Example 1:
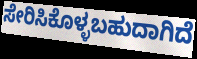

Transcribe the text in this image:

ಸೇರಿಸಿಕೊಳ್ಳಬಹುದಾಗಿದೆ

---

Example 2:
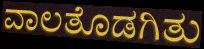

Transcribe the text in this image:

ವಾಲತೊಡಗಿತು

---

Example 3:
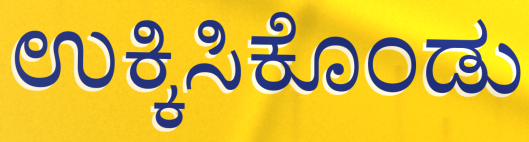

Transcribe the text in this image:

ಉಕ್ಕಿಸಿಕೊಂಡು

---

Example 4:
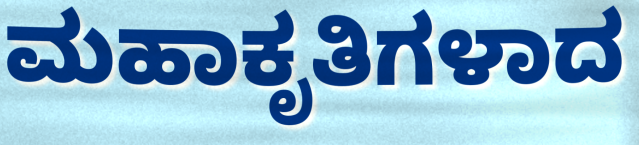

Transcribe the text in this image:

ಮಹಾಕೃತಿಗಳಾದ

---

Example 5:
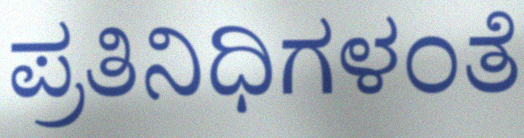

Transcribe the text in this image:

ಪ್ರತಿನಿಧಿಗಳಂತೆ